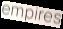
empires